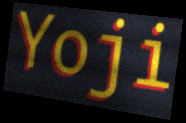
Yoji